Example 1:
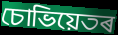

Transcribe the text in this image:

চোভিয়েতৰ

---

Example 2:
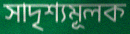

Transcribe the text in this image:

সাদৃশ্যমূলক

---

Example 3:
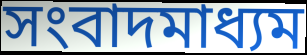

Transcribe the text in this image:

সংবাদমাধ্যম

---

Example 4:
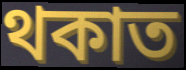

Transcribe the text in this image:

থকাত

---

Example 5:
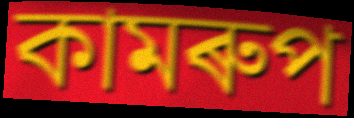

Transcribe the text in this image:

কামৰুপ